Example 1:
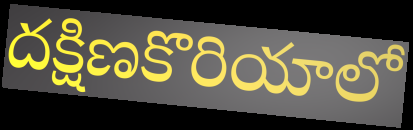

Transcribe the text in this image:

దక్షిణకొరియాలో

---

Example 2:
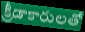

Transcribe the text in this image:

క్రీడాకారులతో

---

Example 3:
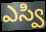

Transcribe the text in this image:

ఎస్వి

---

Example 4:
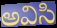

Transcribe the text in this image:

అవిసి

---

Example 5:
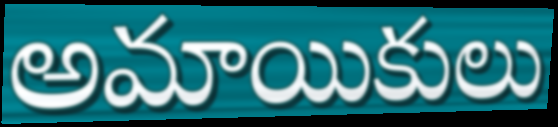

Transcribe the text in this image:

అమాయికులు